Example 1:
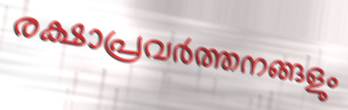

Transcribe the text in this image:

രക്ഷാപ്രവർത്തനങ്ങളും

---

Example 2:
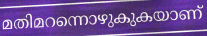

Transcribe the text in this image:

മതിമറന്നൊഴുകുകയാണ്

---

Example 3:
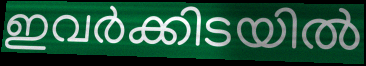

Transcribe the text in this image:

ഇവർക്കിടയിൽ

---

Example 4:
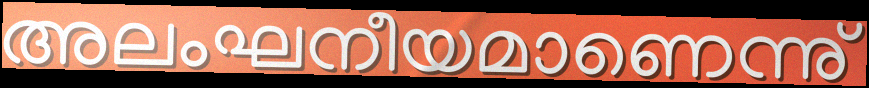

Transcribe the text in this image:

അലംഘനീയമാണെന്നു്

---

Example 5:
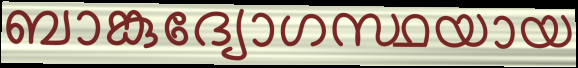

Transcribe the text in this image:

ബാങ്കുദ്യോഗസ്ഥയായ